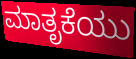
ಮಾತೃಕೆಯು